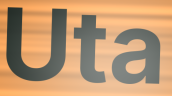
Uta